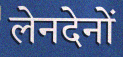
लेनदेनों